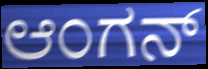
ಆಂಗನ್